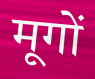
मूगों